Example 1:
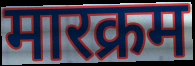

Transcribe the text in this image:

मारक्रम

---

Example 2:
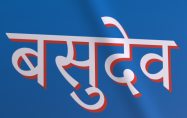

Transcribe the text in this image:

बसुदेव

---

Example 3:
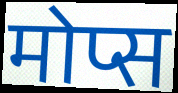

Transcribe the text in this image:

मोप्स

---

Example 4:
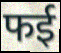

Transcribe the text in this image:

फई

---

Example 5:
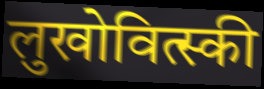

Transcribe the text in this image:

लुखोवित्स्की